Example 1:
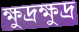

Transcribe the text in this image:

ক্ষুদ্রক্ষুদ্র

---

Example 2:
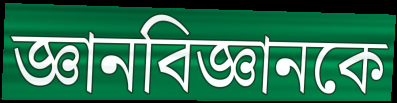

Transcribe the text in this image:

জ্ঞানবিজ্ঞানকে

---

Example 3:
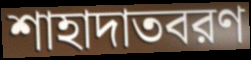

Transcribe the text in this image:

শাহাদাতবরণ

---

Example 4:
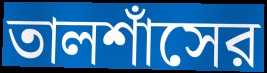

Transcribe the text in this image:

তালশাঁসের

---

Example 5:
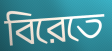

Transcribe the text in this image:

বিরেতে